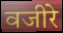
वजीरे